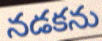
నడకను